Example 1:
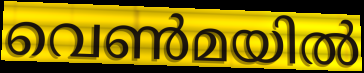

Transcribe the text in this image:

വെൺമയിൽ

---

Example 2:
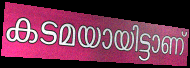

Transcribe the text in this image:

കടമയായിട്ടാണ്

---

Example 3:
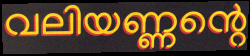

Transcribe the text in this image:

വലിയണ്ണന്റെ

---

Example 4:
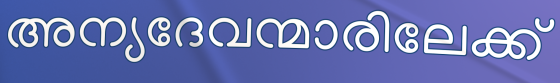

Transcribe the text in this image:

അന്യദേവന്മാരിലേക്ക്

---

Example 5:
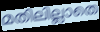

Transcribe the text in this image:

മതിലില്ലാതെ